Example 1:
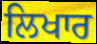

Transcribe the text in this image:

ਲਿਖਾਰ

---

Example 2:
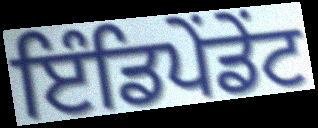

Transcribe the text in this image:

ਇੰਡਿਪੇਂਡੇਂਟ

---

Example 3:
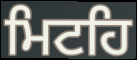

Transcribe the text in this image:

ਮਿਟਹਿ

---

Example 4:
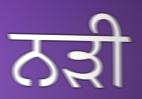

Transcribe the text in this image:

ਨੜੀ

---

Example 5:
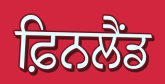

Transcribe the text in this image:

ਫ਼ਿਨਲੈਂਡ